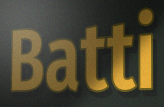
Batti